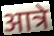
आत्रे